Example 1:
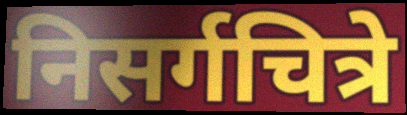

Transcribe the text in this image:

निसर्गचित्रे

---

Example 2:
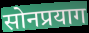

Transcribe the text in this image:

सोनप्रयाग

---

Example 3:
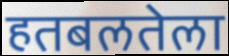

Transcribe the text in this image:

हतबलतेला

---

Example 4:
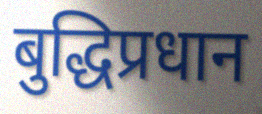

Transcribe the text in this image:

बुद्धिप्रधान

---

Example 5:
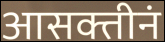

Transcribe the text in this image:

आसक्तीनं